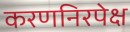
करणनिरपेक्ष